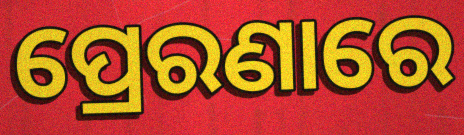
ପ୍ରେରଣାରେ